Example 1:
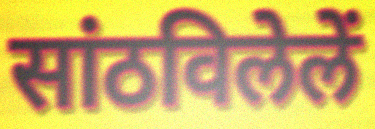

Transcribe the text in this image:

सांठविलेलें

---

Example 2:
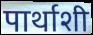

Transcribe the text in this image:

पार्थाशी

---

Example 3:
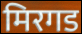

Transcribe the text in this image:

मिरगड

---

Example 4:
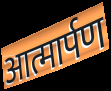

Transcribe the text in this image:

आत्मार्पण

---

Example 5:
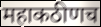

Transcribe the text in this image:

महाकठीणच